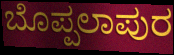
ಬೊಪ್ಪಲಾಪುರ